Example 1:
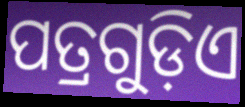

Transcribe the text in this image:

ପତ୍ରଗୁଡ଼ିଏ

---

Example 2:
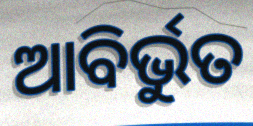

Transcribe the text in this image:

ଆବିର୍ଭୁତ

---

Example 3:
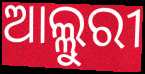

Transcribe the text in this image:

ଆଲ୍ଲୁରୀ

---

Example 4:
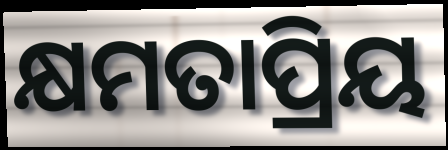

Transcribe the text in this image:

କ୍ଷମତାପ୍ରିୟ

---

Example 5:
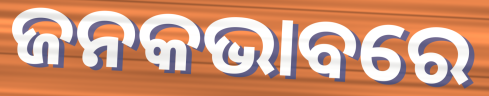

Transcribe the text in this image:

ଜନକଭାବରେ